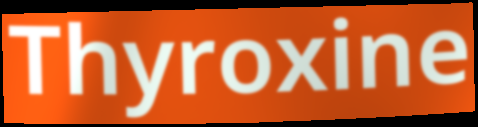
Thyroxine